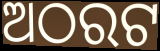
ଅଠରଟ